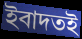
ইবাদতই